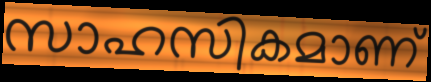
സാഹസികമാണ്